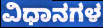
ವಿಧಾನಗಳ